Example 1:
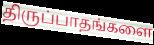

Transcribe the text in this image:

திருப்பாதங்களை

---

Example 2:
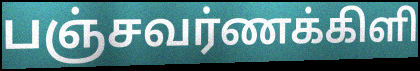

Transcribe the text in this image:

பஞ்சவர்ணக்கிளி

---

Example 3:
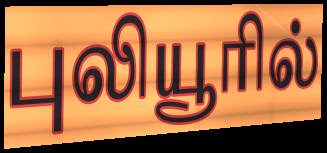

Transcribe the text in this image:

புலியூரில்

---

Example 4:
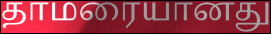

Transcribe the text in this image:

தாமரையானது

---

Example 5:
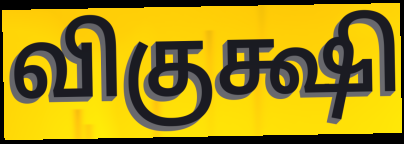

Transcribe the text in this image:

விகுக்ஷி